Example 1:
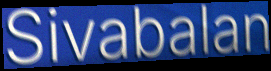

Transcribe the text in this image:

Sivabalan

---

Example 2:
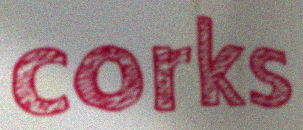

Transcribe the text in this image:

corks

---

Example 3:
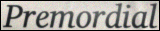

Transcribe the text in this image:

Premordial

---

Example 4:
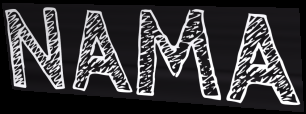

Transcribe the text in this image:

NAMA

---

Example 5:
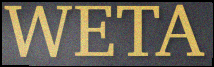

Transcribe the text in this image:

WETA